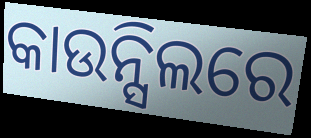
କାଉନ୍ସିଲରେ